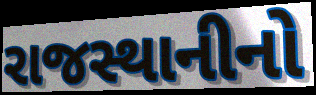
રાજસ્થાનીનો